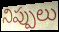
నిప్పులు